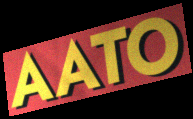
AATO